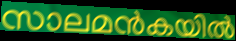
സാലമൻകയിൽ